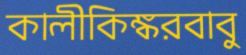
কালীকিঙ্করবাবু